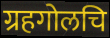
ग्रहगोलचि